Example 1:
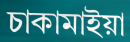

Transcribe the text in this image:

চাকামাইয়া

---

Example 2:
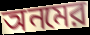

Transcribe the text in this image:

অনমের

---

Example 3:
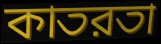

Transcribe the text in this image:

কাতরতা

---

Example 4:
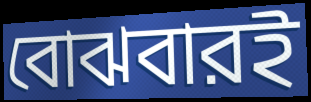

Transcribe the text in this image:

বোঝবারই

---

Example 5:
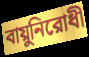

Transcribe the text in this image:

বায়ুনিরোধী